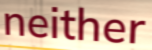
neither